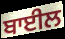
ਬਾਈਲ